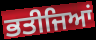
ਭਤੀਜਿਆਂ